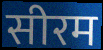
सीरम